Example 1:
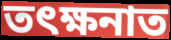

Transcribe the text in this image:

তৎক্ষনাত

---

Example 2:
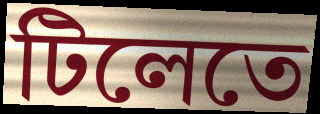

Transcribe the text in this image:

টিলেতে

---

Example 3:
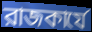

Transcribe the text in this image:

রাজকার্যে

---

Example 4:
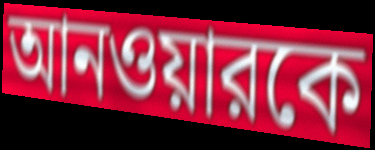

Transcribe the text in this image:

আনওয়ারকে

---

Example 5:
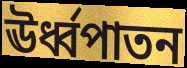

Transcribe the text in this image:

ঊর্ধ্বপাতন